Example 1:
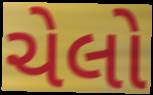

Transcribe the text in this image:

ચેલો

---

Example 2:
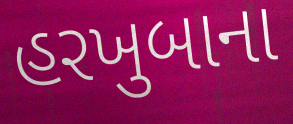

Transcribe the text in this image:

હરખુબાના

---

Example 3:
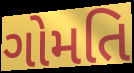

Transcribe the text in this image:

ગોમતિ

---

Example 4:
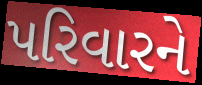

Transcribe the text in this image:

પરિવારને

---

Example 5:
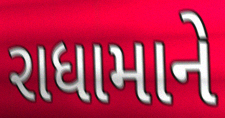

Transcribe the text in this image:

રાધામાને